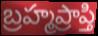
బ్రహ్మప్రాప్తి